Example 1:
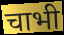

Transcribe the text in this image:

चाभी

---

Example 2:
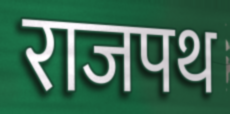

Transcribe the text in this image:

राजपथ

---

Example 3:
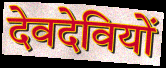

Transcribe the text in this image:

देवदेवियों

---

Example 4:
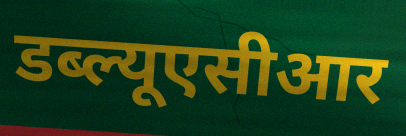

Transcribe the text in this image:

डब्ल्यूएसीआर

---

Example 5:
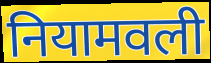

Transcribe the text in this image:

नियामवली